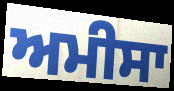
ਅਮੀਸਾ